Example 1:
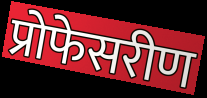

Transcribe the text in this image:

प्रोफेसरीण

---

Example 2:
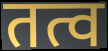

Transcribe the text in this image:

तत्व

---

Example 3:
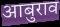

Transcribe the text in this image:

आबुराव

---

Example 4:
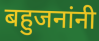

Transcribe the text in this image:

बहुजनांनी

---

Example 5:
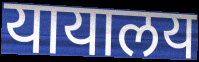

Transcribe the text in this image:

यायालय